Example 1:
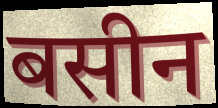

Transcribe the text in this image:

बसीन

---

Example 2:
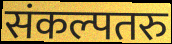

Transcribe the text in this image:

संकल्पतरु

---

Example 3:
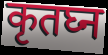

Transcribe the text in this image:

कृतघ्न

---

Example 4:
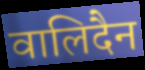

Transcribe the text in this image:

वालिदैन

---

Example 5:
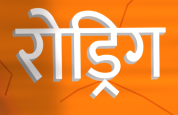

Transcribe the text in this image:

रोड्रिग